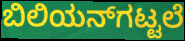
ಬಿಲಿಯನ್‌ಗಟ್ಟಲೆ